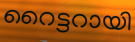
റൈട്ടറായി